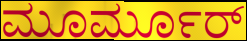
ಮೂರ್ಮೂರ್